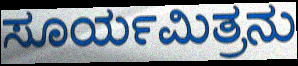
ಸೂರ್ಯಮಿತ್ರನು